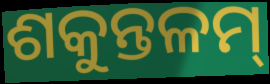
ଶକୁନ୍ତଳମ୍